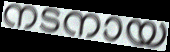
നടനായ